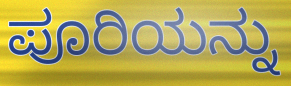
ಪೂರಿಯನ್ನು